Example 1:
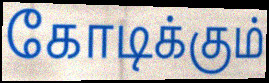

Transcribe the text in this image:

கோடிக்கும்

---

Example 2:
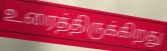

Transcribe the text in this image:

உரைத்திருக்கிறது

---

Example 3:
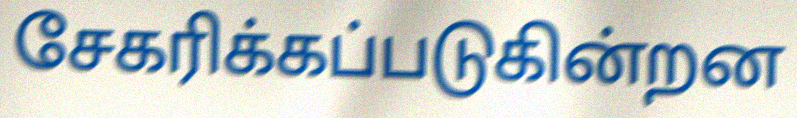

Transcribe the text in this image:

சேகரிக்கப்படுகின்றன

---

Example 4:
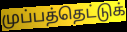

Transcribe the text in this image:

முப்பத்தெட்டுக்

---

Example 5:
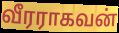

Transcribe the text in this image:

வீரராகவன்